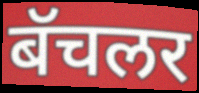
बॅचलर